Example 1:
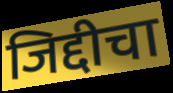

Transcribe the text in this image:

जिद्दीचा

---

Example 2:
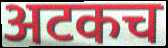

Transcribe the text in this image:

अटकच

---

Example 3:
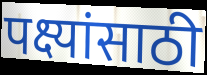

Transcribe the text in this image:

पक्ष्यांसाठी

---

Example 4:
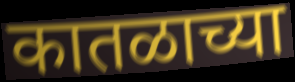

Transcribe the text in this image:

कातळाच्या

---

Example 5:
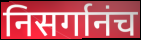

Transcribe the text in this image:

निसर्गानंच